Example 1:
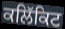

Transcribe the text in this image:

ਕਲਿੱਕਿਟ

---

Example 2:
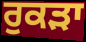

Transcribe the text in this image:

ਰੁਕੜਾ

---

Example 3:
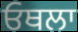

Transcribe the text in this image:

ਓਥਲਾ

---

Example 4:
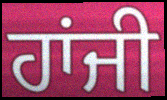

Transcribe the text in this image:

ਹਾਂਜੀ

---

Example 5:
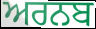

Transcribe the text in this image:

ਅਰਨਬ